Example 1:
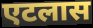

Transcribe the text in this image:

एटलास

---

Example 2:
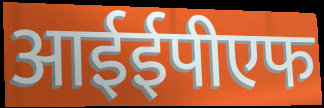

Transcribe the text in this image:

आईईपीएफ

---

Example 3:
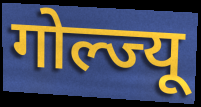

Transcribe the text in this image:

गोल्ज्यू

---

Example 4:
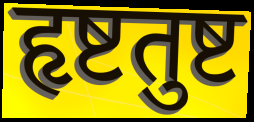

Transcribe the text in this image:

हृष्टतुष्ट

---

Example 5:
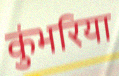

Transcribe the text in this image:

कुंभरिया